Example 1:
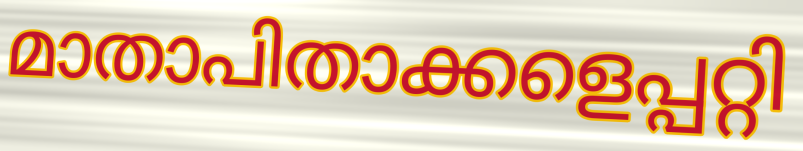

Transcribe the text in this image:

മാതാപിതാക്കളെപ്പറ്റി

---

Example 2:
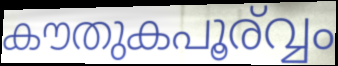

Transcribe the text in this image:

കൗതുകപൂര്വ്വം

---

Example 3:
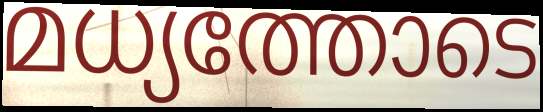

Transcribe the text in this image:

മധ്യത്തോടെ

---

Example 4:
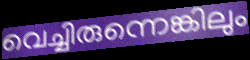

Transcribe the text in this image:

വെച്ചിരുന്നെങ്കിലും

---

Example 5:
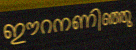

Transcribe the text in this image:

ഈറനണിഞ്ഞു